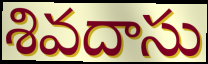
శివదాసు